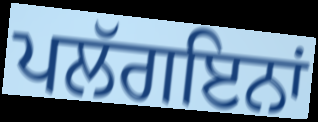
ਪਲੱਗਇਨਾਂ